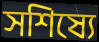
সশিষ্যে